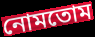
নোমতোম